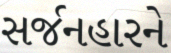
સર્જનહારને